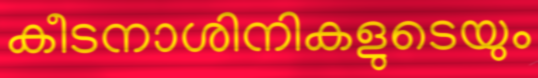
കീടനാശിനികളുടെയും